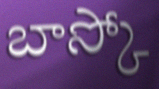
బాస్కో